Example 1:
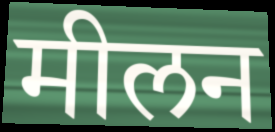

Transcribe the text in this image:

मीलन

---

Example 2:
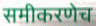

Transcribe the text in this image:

समीकरणेच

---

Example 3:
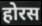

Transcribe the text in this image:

होरस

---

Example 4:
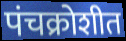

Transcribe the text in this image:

पंचक्रोशीत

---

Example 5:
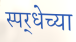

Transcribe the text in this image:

स्पर्धेच्या